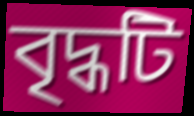
বৃদ্ধটি